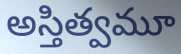
అస్తిత్వమూ